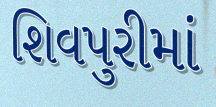
શિવપુરીમાં